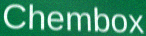
Chembox